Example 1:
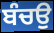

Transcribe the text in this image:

ਬੰਚਉ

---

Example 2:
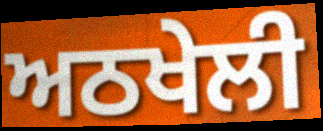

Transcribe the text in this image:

ਅਠਖੇਲੀ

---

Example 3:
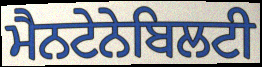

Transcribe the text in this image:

ਮੈਨਟੇਨੇਬਿਲਟੀ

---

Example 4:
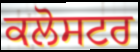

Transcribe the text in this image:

ਕਲੋਸਟਰ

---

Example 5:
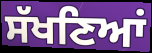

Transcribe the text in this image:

ਸੱਖਣਿਆਂ